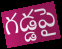
గడ్డపై